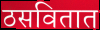
ठसवितात